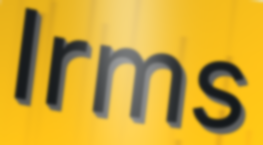
Irms